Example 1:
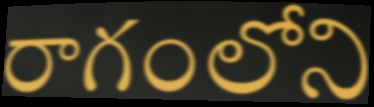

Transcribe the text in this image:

రాగంలోని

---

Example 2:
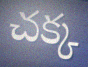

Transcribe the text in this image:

చక్క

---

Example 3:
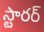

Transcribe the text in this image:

స్టారర్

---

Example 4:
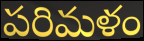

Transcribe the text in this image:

పరిమళం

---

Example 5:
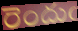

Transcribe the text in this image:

రెందుఁ